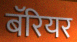
बॅरियर